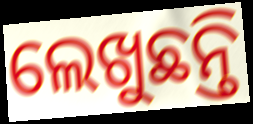
ଲେଖୁଛନ୍ତି